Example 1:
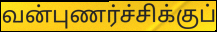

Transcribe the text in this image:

வன்புணர்ச்சிக்குப்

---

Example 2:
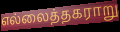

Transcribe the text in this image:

எல்லைத்தகராறு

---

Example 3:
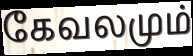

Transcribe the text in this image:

கேவலமும்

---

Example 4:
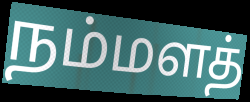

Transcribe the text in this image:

நம்மளத்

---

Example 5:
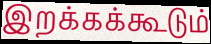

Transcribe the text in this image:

இறக்கக்கூடும்